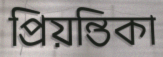
প্রিয়ন্তিকা